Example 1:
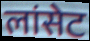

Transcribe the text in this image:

लांसेट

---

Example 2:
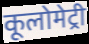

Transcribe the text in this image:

कूलोमेट्री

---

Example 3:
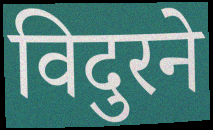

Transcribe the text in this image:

विदुरने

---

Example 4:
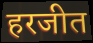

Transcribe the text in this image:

हरजीत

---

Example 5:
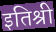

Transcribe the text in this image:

इतिश्री